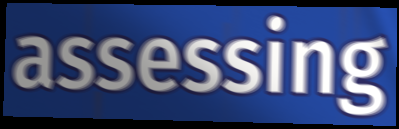
assessing